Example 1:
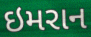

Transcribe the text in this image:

ઇમરાન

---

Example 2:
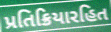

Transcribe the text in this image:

પ્રતિક્રિયારહિત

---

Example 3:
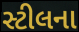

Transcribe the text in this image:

સ્ટીલના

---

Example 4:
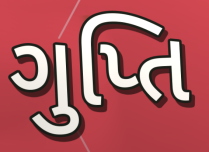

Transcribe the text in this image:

ગુપ્તિ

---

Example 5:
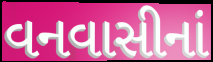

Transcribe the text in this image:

વનવાસીનાં